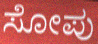
ಸೋಪು